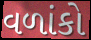
વળાંકો